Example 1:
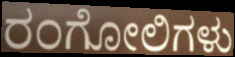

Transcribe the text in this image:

ರಂಗೋಲಿಗಳು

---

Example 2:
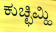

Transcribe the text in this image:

ಕುಚ್ಛಿಮ್ಹಿ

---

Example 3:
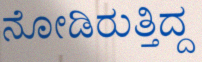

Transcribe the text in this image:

ನೋಡಿರುತ್ತಿದ್ದ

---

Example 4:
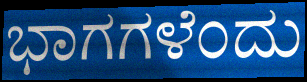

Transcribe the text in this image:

ಭಾಗಗಳೆಂದು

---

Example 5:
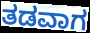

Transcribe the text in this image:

ತಡವಾಗ